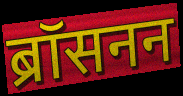
ब्रॉसनन